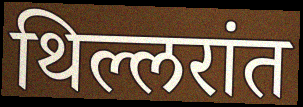
थिल्लरांत